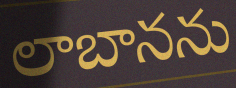
లాబానను